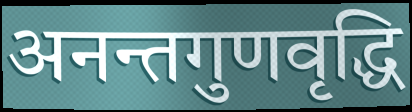
अनन्तगुणवृद्धि